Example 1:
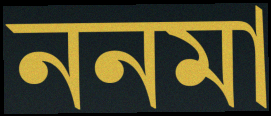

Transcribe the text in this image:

ননমা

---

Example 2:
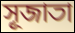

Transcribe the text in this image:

সূজাতা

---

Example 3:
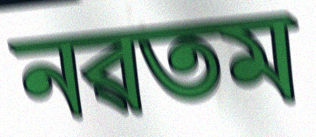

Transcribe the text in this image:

নৱতম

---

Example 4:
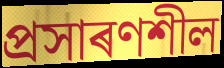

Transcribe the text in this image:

প্ৰসাৰণশীল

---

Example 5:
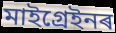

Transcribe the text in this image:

মাইগ্ৰেইনৰ